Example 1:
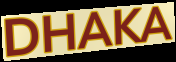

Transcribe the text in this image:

DHAKA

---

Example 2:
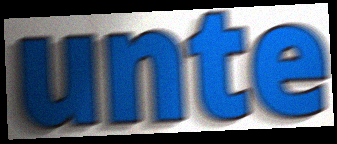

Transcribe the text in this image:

unte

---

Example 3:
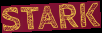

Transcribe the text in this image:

STARK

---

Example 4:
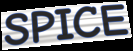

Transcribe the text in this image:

SPICE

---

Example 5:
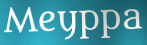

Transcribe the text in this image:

Meyppa